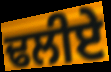
ਢਲੀਏ